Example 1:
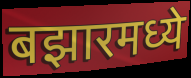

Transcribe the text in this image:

बझारमध्ये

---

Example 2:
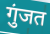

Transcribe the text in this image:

गुंजत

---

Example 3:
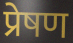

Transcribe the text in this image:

प्रेषण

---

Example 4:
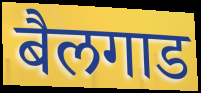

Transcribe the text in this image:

बैलगाड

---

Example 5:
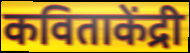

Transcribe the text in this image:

कविताकेंद्री